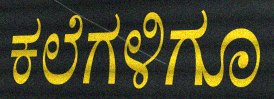
ಕಲೆಗಳಿಗೂ